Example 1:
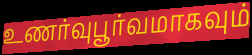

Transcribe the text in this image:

உணர்வுபூர்வமாகவும்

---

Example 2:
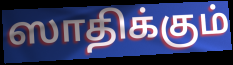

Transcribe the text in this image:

ஸாதிக்கும்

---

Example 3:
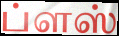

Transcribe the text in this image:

ப்ளஸ்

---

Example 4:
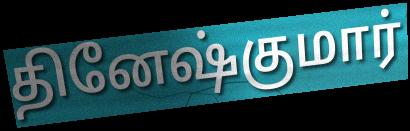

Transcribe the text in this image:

தினேஷ்குமார்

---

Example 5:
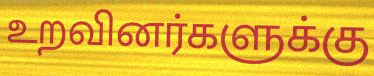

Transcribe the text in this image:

உறவினர்களுக்கு